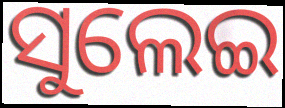
ସୁଲେଇ